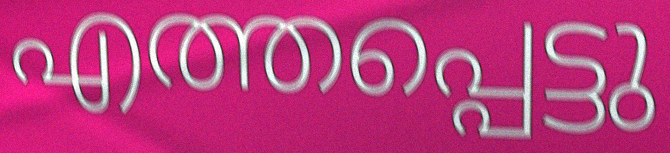
എത്തപ്പെട്ടു